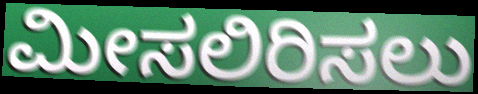
ಮೀಸಲಿರಿಸಲು